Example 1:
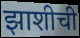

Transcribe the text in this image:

झाशीची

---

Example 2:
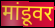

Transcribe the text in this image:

मांडूवर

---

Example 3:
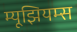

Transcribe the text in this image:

म्यूझियम्स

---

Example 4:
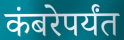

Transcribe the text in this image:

कंबरेपर्यंत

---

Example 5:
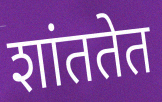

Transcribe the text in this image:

शांततेत